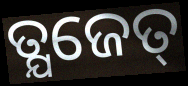
ତ୍ଯଜେତ୍